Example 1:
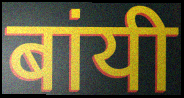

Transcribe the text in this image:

बांयी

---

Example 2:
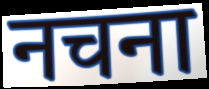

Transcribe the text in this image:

नचना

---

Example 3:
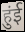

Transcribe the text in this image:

हुंई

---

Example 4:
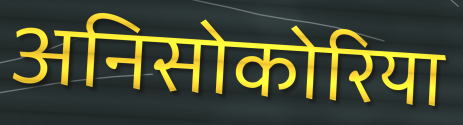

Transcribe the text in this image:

अनिसोकोरिया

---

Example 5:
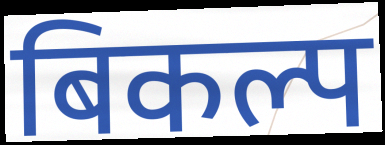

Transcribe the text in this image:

बिकल्प